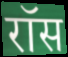
रॉस